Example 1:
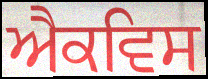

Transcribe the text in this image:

ਐਕਵਿਸ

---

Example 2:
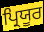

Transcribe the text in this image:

ਪ੍ਰਿਯੂਰ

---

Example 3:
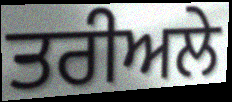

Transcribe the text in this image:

ਤਰੀਅਲੇ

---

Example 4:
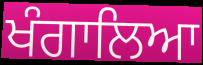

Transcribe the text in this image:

ਖੰਗਾਲਿਆ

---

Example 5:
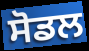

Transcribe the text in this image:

ਸੋਡਲ